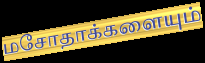
மசோதாக்களையும்